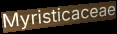
Myristicaceae